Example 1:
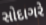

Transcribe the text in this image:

સોદાગરે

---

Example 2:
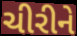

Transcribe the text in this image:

ચીરીને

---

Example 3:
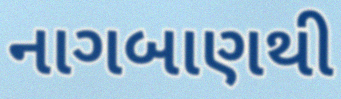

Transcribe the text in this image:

નાગબાણથી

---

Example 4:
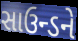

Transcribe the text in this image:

સાઉન્ડને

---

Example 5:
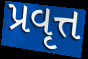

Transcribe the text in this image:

પ્રવૃત્ત